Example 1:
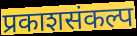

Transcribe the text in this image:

प्रकाशसंकल्प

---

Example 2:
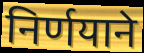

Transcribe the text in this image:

निर्णयाने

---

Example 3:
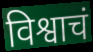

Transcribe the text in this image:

विश्वाचं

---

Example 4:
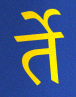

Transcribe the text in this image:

र्ते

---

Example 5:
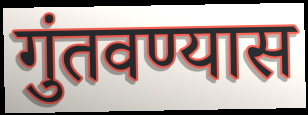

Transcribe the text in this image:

गुंतवण्यास